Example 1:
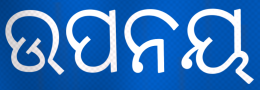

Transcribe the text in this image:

ଉପନୟ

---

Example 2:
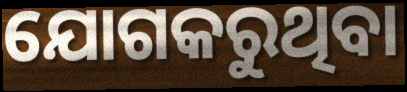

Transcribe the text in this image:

ଯୋଗକରୁଥିବା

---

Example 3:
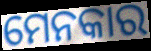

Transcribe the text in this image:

ମେନକାର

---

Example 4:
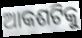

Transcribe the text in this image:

ଆକଶଟିକୁ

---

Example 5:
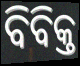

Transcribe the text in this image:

ବିବିକ୍ତ